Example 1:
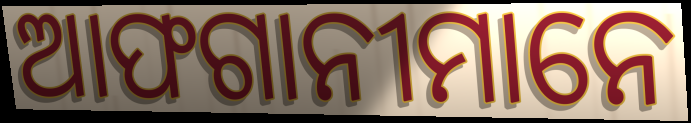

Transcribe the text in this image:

ଆଫଗାନୀମାନେ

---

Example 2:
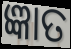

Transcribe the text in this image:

ଜ୍ଞାତ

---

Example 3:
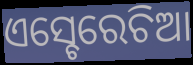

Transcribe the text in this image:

ଏସ୍ଚେରେଚିଆ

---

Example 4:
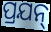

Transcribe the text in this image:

ପ୍ରଯନ୍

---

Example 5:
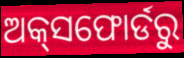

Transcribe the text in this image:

ଅକ୍‌ସଫୋର୍ଡରୁ